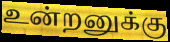
உன்றனுக்கு